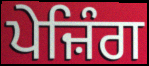
ਪੇਜ਼ਿੰਗ